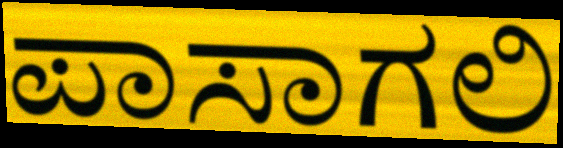
ಪಾಸಾಗಲಿ